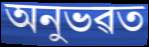
অনুভৱত